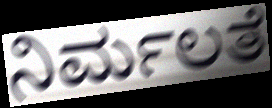
ನಿರ್ಮಲತೆ